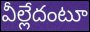
వీల్లేదంటూ